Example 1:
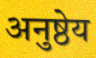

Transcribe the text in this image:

अनुष्ठेय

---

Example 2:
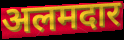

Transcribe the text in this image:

अलमदार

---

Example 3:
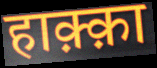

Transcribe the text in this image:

हाक़्क़ा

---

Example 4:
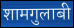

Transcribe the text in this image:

शामगुलाबी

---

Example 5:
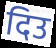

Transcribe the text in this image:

दिउ